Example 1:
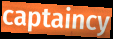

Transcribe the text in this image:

captaincy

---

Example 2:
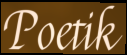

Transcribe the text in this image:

Poetik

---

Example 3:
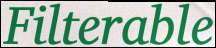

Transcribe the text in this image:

Filterable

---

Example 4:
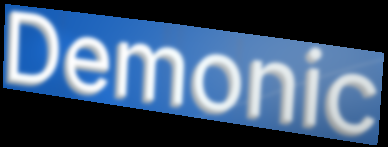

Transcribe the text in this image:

Demonic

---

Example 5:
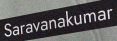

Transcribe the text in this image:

Saravanakumar